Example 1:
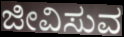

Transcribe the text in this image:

ಜೀವಿಸುವ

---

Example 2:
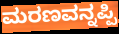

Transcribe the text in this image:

ಮರಣವನ್ನಪ್ಪಿ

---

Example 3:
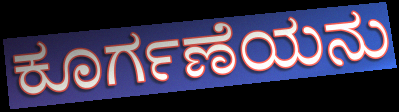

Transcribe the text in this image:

ಕೂರ್ಗಣೆಯನು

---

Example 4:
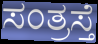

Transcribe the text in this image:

ಸಂತ್ರಸ್ತೆ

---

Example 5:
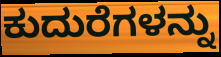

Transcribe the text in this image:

ಕುದುರೆಗಳನ್ನು